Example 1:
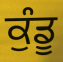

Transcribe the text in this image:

ਕੁੰਡੂ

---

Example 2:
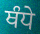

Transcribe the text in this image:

ਥੰਧੇ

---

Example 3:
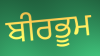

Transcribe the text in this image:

ਬੀਰਭੂਮ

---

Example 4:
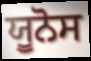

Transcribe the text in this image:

ਯੂਨੋਸ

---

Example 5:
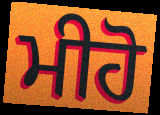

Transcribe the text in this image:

ਮੀਹੋ